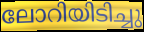
ലോറിയിടിച്ചു